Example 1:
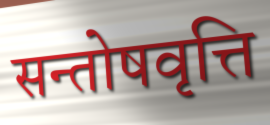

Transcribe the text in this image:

सन्तोषवृत्ति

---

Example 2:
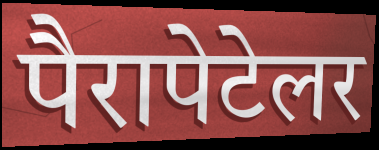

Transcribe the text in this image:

पैरापेटेलर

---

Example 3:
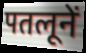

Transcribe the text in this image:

पतलूनें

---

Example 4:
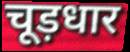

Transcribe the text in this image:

चूड़धार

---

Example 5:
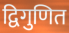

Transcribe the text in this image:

द्विगुणित